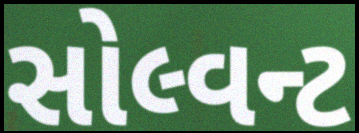
સોલ્વન્ટ